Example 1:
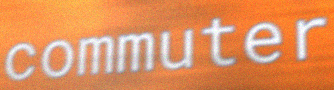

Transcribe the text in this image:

commuter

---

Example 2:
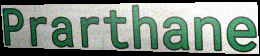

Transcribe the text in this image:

Prarthane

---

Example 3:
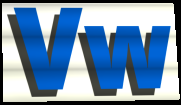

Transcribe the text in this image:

Vw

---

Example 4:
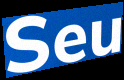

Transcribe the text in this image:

Seu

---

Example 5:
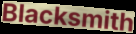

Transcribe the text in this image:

Blacksmith